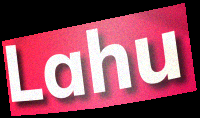
Lahu